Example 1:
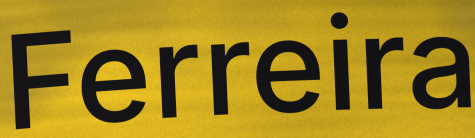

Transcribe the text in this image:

Ferreira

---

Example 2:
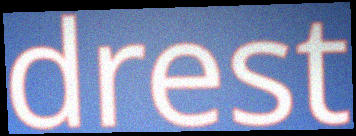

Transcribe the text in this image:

drest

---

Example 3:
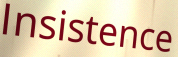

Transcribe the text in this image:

Insistence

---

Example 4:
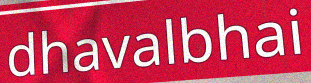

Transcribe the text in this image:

dhavalbhai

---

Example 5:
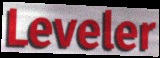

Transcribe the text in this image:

Leveler